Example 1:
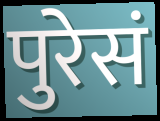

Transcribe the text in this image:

पुरेसं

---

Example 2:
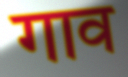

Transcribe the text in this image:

गाव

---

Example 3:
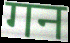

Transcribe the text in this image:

गन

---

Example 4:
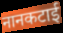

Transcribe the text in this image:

नानकटाई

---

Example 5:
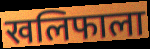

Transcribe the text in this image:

खलिफाला